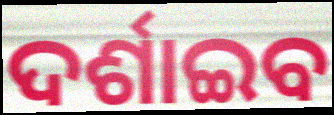
ଦର୍ଶାଇବ